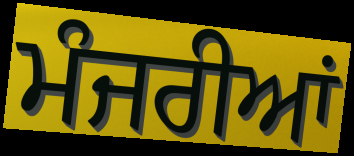
ਮੰਜਰੀਆਂ